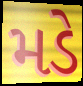
મડે